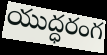
యుద్ధరంగ